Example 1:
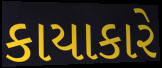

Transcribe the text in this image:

કાયાકારે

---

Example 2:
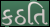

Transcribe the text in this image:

કઠતિ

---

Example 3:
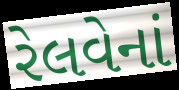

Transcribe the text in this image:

રેલવેનાં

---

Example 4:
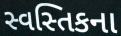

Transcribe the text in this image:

સ્વસ્તિકના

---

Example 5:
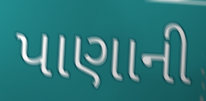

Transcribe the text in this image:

પાણાની